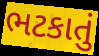
ભટકાતું